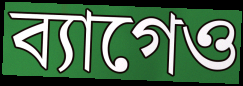
ব্যাগেও